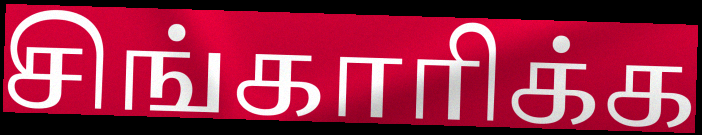
சிங்காரிக்க